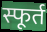
स्‍फूर्त